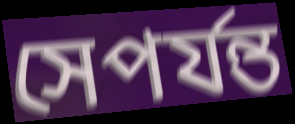
সেপর্যন্ত